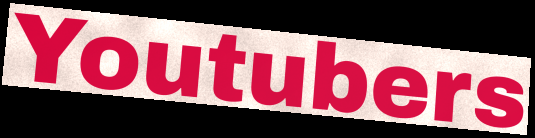
Youtubers